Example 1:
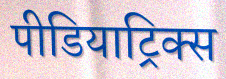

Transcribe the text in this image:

पीडियाट्रिक्स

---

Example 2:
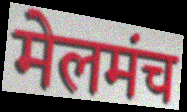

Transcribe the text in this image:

मेलमंच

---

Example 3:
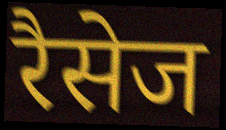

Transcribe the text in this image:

रैसेज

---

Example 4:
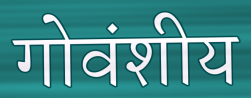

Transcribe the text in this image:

गोवंशीय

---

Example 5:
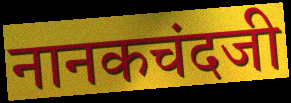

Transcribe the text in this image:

नानकचंदजी